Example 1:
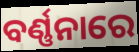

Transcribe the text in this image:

ବର୍ଣ୍ଣନାରେ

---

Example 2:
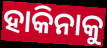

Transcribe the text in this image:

ହାକିନାକୁ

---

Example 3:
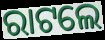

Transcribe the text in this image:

ରାଟଲେ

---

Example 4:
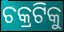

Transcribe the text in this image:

ଚକ୍ରଟିକୁ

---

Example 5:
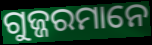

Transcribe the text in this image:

ଗୁଜ୍ଜରମାନେ